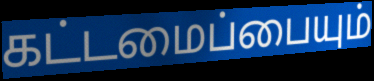
கட்டமைப்பையும்